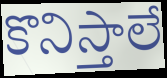
కొనిస్తాలే